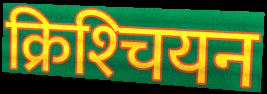
क्रिश्‍चियन